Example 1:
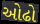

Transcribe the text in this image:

ઓઢો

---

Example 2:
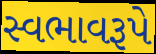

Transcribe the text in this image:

સ્વભાવરૂપે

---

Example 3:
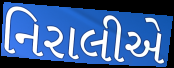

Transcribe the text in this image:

નિરાલીએ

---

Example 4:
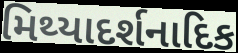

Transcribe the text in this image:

મિથ્યાદર્શનાદિક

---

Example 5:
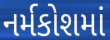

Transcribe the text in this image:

નર્મકોશમાં